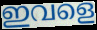
ഇവളെ